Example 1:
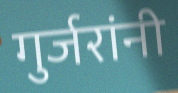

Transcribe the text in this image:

गुर्जरांनी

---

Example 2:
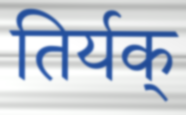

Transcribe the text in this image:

तिर्यक्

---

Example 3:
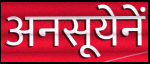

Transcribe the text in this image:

अनसूयेनें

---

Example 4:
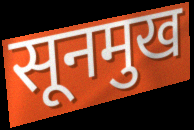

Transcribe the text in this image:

सूनमुख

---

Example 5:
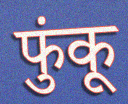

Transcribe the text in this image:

फुंकू